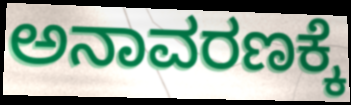
ಅನಾವರಣಕ್ಕೆ